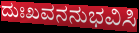
ದುಃಖವನನುಭವಿಸಿ